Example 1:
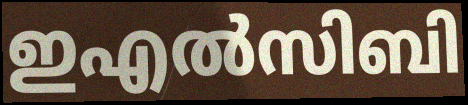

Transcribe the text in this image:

ഇഎൽസിബി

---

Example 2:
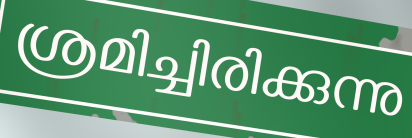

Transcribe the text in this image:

ശ്രമിച്ചിരിക്കുന്നു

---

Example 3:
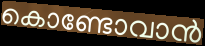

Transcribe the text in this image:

കൊണ്ടോവാൻ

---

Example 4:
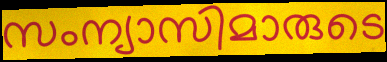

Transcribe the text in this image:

സംന്യാസിമാരുടെ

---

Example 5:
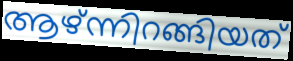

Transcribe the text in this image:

ആഴ്ന്നിറങ്ങിയത്